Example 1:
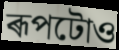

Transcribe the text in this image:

ৰূপটোও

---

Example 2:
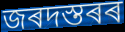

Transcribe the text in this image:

জৰদস্তৰৰ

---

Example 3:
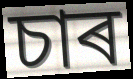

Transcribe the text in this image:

চাৰ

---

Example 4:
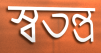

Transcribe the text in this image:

স্বতন্ত্ৰ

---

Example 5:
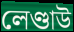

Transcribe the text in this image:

লেণ্ডাউ